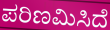
ಪರಿಣಮಿಸಿದೆ